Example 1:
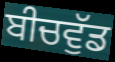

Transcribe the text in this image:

ਬੀਚਵੁੱਡ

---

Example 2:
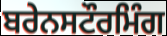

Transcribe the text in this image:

ਬਰੇਨਸਟੌਰਮਿੰਗ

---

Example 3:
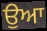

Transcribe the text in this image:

ਉਆ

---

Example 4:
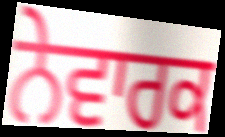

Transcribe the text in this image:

ਨੇਵਾਰਕ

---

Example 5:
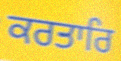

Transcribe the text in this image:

ਕਰਤਾਰਿ